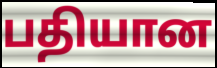
பதியான